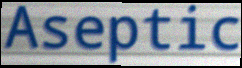
Aseptic